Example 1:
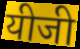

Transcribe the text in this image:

यीजी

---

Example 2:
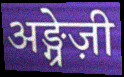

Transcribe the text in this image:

अङ्ग्रेज़ी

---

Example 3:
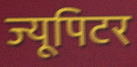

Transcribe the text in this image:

ज्यूपिटर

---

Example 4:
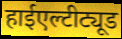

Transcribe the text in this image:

हाईएल्टीट्यूड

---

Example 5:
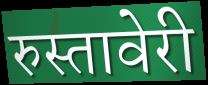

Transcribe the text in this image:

रुस्तावेरी